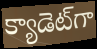
క్యాడెట్‌గా